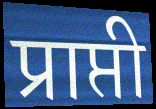
प्राप्ती